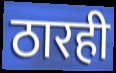
ठारही